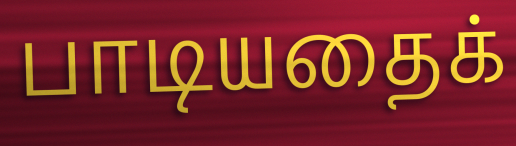
பாடியதைக்